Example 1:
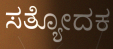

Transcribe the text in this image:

ಸತ್ಯೋದಕ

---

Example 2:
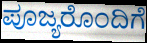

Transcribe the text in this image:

ಪೂಜ್ಯರೊಂದಿಗೆ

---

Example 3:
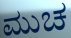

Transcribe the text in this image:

ಮುಚ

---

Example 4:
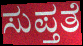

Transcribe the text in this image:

ಸುಪ್ತತೆ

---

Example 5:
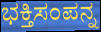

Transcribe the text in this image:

ಭಕ್ತಿಸಂಪನ್ನ